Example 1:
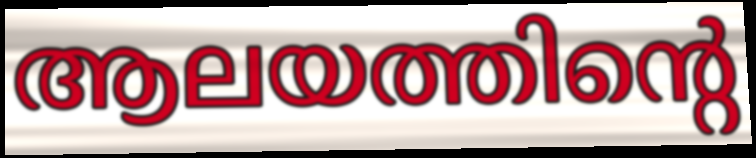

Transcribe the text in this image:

ആലയത്തിന്റെ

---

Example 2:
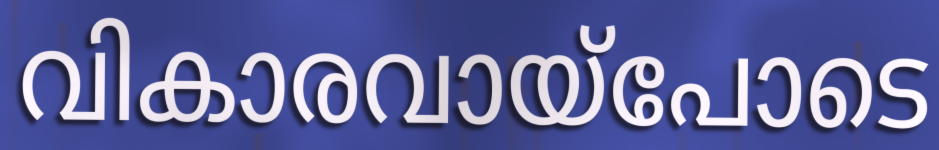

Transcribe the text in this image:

വികാരവായ്പോടെ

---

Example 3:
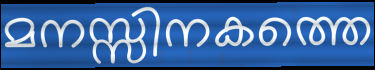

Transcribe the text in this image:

മനസ്സിനകത്തെ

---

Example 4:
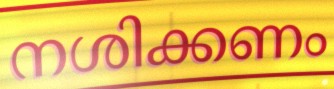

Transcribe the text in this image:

നശിക്കണം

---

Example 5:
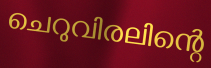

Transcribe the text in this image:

ചെറുവിരലിന്റെ